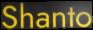
Shanto